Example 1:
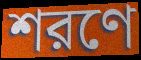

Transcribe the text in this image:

শরণে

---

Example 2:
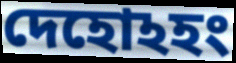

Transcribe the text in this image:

দেহোঽহং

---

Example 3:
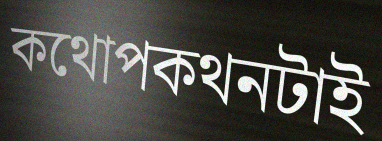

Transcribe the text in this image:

কথোপকথনটাই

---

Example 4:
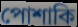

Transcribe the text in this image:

পোশাকি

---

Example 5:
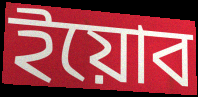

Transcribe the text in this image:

ইয়োব